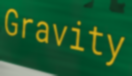
Gravity